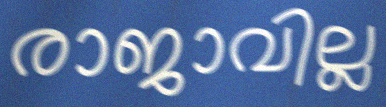
രാജാവില്ല